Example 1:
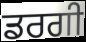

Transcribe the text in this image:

ਡਰਗੀ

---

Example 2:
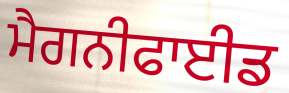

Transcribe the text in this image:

ਮੈਗਨੀਫਾਈਡ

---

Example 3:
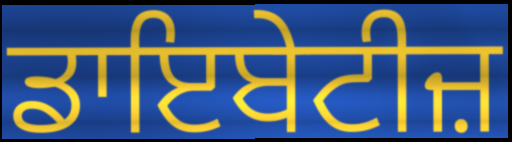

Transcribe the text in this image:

ਡਾਇਬੇਟੀਜ਼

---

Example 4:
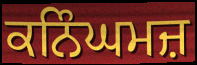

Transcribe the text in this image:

ਕਨਿੰਘਮਜ਼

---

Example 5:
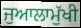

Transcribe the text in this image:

ਜੁਆਲਾਮੁੱਖੀ